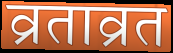
व्रताव्रत